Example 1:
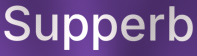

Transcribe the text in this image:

Supperb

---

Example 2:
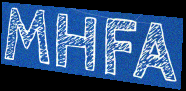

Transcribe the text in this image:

MHFA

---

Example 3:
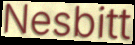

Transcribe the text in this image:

Nesbitt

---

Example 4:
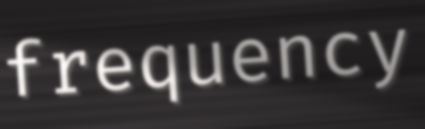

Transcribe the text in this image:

frequency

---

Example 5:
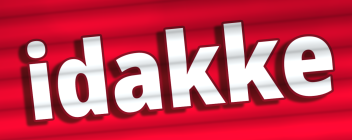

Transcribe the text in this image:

idakke